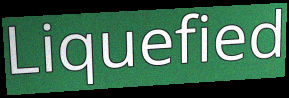
Liquefied